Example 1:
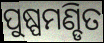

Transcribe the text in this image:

ପୁଷ୍ପମଣ୍ଡିତ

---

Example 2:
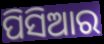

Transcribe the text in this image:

ପିସିଆର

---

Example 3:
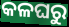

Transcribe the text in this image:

କଳଘରୁ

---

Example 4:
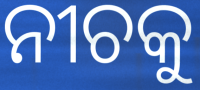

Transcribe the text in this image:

ନୀଚକୁ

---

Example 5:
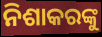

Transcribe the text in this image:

ନିଶାକରଙ୍କୁ